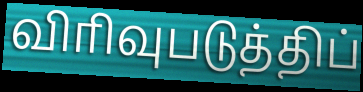
விரிவுபடுத்திப்